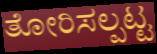
ತೋರಿಸಲ್ಪಟ್ಟ